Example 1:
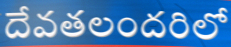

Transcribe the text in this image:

దేవతలందరిలో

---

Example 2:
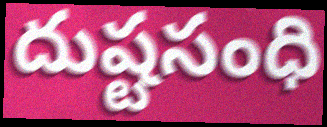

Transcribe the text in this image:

దుష్టసంధి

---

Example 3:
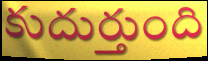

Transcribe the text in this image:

కుదుర్తుంది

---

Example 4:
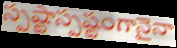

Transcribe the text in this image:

స్పష్టాస్పష్టంగానైనా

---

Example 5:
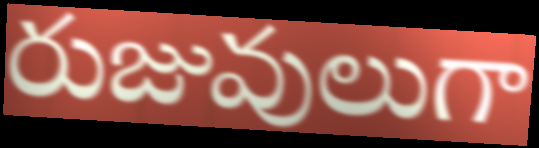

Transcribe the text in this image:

రుజువులుగా